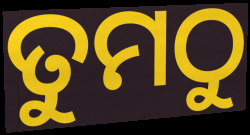
ତୁମଠୁ